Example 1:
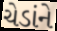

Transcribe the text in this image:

ચેડાંને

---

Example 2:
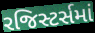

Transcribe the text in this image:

રજિસ્ટર્સમાં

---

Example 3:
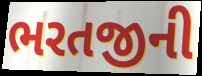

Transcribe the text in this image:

ભરતજીની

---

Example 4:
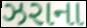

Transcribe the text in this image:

ઝરાના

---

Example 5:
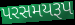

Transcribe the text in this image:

પરસમયરૂપ